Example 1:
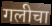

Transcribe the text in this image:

गलीचा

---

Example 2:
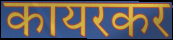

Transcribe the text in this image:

कायरकर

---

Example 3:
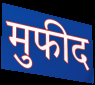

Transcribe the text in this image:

मुफीद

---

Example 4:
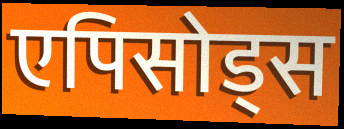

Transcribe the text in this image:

एपिसोड्स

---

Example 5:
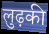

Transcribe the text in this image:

लुढ़की